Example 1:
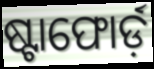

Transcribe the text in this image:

ଷ୍ଟାଫୋର୍ଡ଼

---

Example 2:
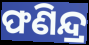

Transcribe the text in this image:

ଫଣିନ୍ଦ୍ର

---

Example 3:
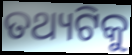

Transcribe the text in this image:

ତଥ୍ୟଟିକୁ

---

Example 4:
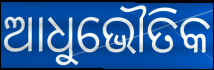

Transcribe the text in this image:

ଆଧୁଭୌତିକ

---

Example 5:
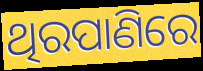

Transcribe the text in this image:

ଥିରପାଣିରେ